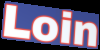
Loin